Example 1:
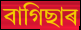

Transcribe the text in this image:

বাগিছাৰ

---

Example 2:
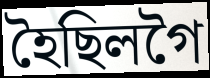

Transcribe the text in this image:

হৈছিলগৈ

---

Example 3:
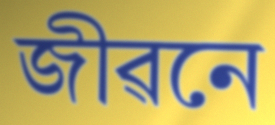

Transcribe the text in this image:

জীৱনে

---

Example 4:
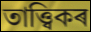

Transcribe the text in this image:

তাত্ত্বিকৰ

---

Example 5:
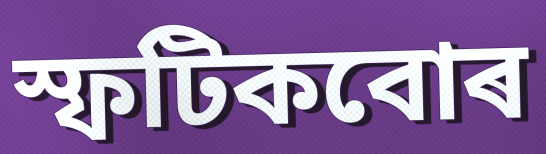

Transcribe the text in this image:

স্ফটিকবোৰ